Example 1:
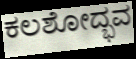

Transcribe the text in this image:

ಕಲಶೋದ್ಭವ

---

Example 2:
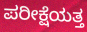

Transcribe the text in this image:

ಪರೀಕ್ಷೆಯತ್ತ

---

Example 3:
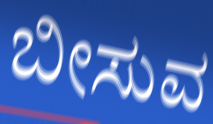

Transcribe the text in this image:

ಬೀಸುವ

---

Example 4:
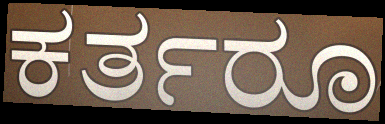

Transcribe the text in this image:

ಕರ್ತರೂ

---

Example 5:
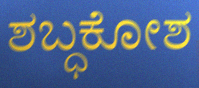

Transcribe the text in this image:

ಶಬ್ಧಕೋಶ